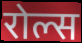
रोल्स